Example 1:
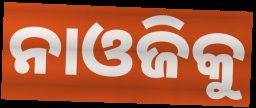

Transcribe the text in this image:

ନାଓଜିକୁ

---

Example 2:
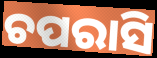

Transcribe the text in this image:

ଚପରାସି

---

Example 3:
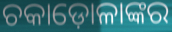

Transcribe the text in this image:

ଚକାଡ଼ୋଳାଙ୍କର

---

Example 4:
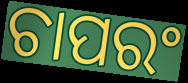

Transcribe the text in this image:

ଚାପରଂ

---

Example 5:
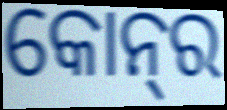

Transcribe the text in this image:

କୋନ୍‌ର